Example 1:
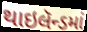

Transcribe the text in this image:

થાઇલૅન્ડમાં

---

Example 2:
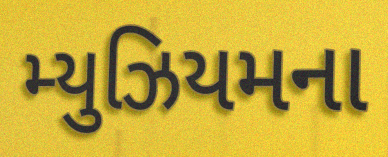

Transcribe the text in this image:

મ્યુઝિયમના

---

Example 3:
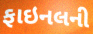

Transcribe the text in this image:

ફાઇનલની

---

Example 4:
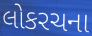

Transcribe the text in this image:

લોકરચના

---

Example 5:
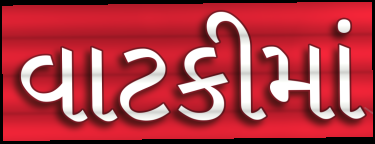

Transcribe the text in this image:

વાટકીમાં